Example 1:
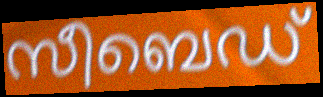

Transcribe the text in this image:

സീബെഡ്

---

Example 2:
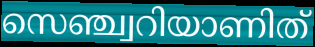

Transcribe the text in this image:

സെഞ്ച്വറിയാണിത്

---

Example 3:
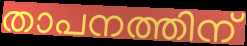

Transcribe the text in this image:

താപനത്തിന്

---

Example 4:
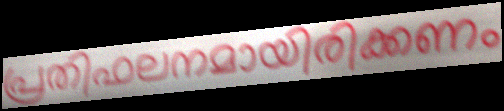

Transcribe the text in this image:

പ്രതിഫലനമായിരിക്കണം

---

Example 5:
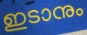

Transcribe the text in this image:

ഇടാനും